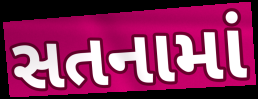
સતનામાં